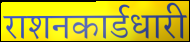
राशनकार्डधारी